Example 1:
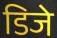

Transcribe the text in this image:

डिजे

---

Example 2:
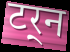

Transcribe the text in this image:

टर्न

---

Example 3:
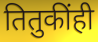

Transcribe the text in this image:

तितुकींही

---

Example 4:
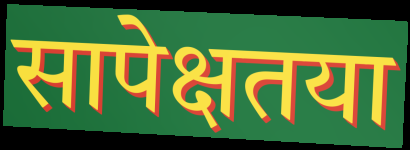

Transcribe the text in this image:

सापेक्षतया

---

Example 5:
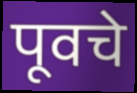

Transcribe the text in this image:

पूवचे